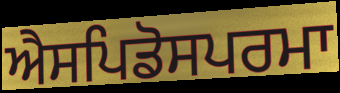
ਐਸਪਿਡੋਸਪਰਮਾ